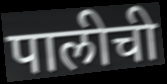
पालीची